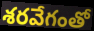
శరవేగంతో